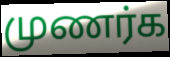
முணர்க